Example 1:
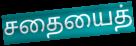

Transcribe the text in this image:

சதையைத்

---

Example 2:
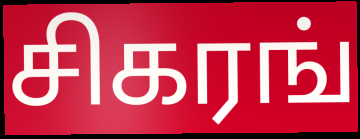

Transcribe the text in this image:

சிகரங்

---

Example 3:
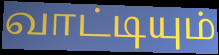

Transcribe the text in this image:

வாட்டியும்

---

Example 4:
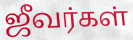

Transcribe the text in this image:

ஜீவர்கள்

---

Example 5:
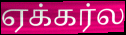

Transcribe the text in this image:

ஏக்கர்ல